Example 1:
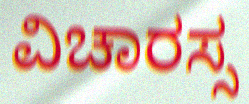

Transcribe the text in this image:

ವಿಚಾರಸ್ಸ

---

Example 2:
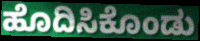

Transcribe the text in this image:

ಹೊದಿಸಿಕೊಂಡು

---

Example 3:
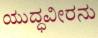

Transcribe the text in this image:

ಯುದ್ಧವೀರನು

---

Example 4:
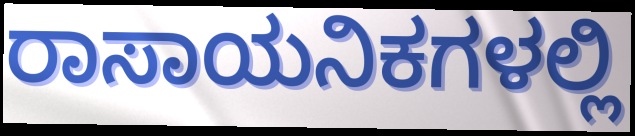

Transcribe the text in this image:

ರಾಸಾಯನಿಕಗಳಲ್ಲಿ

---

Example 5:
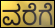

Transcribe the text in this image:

ವರೆಗೆ